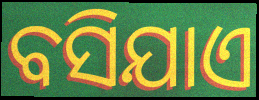
ବସିଯାଏ